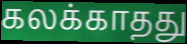
கலக்காதது